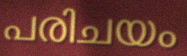
പരിചയം